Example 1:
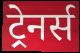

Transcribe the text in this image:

ट्रेनर्स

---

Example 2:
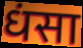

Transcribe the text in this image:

धंसा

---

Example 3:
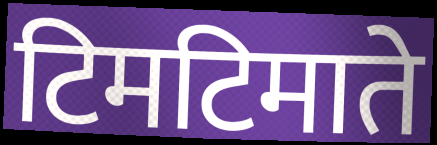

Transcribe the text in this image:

टिमटिमाते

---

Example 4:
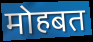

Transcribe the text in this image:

मोहबत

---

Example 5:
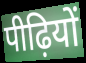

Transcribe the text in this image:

पीढ़ियों